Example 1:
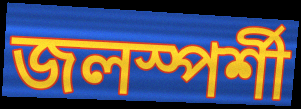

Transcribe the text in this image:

জলস্পর্শী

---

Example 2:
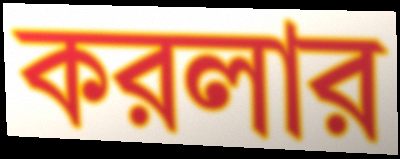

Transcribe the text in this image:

করলার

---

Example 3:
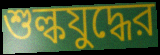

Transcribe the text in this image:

শুল্কযুদ্ধের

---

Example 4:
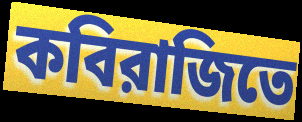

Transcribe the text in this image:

কবিরাজিতে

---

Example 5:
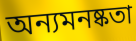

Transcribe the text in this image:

অন্যমনষ্কতা